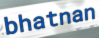
bhatnan